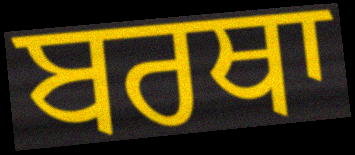
ਬਰਥਾ